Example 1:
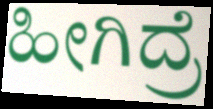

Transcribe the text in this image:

ಹೀಗಿದ್ರೆ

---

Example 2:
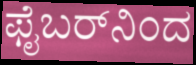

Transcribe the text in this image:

ಫೈಬರ್‌ನಿಂದ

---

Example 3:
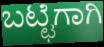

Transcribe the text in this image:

ಬಟ್ಟೆಗಾಗಿ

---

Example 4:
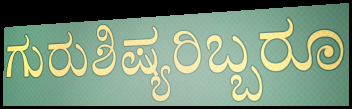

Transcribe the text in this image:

ಗುರುಶಿಷ್ಯರಿಬ್ಬರೂ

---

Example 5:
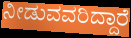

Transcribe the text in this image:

ನೀಡುವವರಿದ್ದಾರೆ